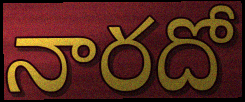
నారదో